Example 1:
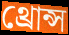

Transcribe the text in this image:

থ্রোন্স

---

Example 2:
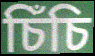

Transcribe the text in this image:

চিঁচি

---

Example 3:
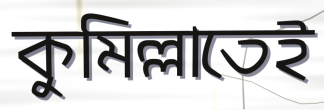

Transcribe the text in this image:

কুমিল্লাতেই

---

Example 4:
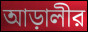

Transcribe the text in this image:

আড়ালীর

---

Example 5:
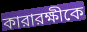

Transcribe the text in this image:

কারারক্ষীকে